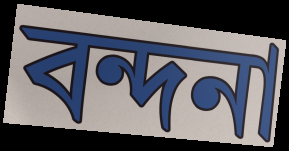
বন্দনা